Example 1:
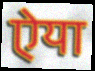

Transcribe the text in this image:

ऐया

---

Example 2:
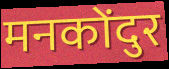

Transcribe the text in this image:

मनकोंदुर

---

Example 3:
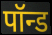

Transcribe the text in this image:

पॉन्ड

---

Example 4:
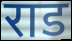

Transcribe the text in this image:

राड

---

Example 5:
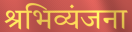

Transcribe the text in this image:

श्रभिव्यंजना